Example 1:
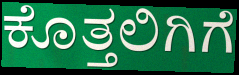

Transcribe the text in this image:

ಕೊತ್ತಲಿಗಿಗೆ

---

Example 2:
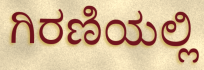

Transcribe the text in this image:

ಗಿರಣಿಯಲ್ಲಿ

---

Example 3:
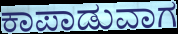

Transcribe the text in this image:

ಕಾಪಾಡುವಾಗ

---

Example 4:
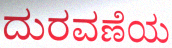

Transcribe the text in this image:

ದುರವಣೆಯ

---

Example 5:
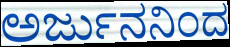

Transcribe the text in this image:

ಅರ್ಜುನನಿಂದ